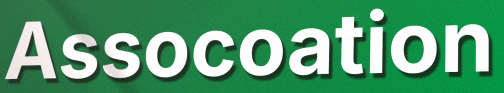
Assocoation